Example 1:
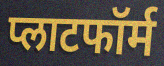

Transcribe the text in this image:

प्लाटफॉर्म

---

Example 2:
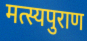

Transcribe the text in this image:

मत्स्यपुराण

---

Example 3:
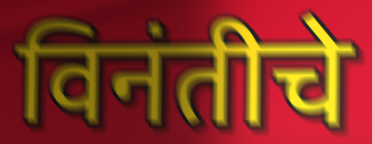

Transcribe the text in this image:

विनंतीचे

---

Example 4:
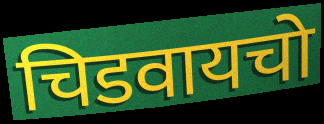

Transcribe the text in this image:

चिडवायचो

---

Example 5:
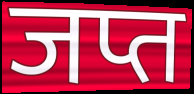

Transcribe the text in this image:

जप्त